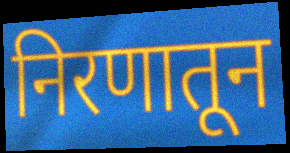
निरणातून